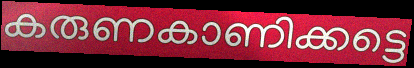
കരുണകാണിക്കട്ടെ